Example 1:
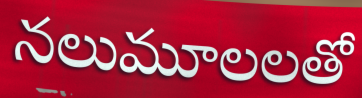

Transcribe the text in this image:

నలుమూలలతో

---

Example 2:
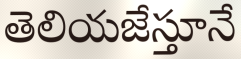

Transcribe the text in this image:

తెలియజేస్తూనే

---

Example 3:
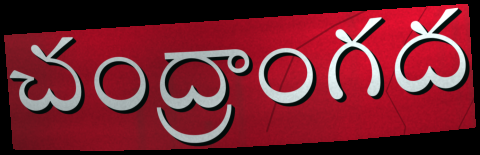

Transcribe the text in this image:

చంద్రాంగద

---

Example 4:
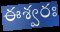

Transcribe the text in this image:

ఈశ్వరః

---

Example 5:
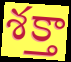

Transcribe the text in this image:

శక్తా